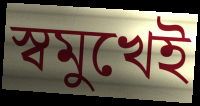
স্বমুখেই